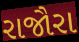
રાજૌરા